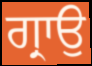
ਗ੍ਰਾਉ